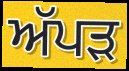
ਅੱਪੜ